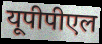
यूपीपीएल